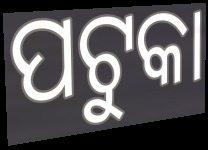
ପଟୁକା